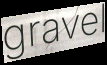
gravel